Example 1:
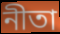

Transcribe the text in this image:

নীতা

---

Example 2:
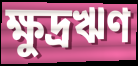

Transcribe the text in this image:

ক্ষুদ্রঋণ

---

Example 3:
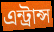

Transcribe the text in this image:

এন্ট্রান্স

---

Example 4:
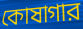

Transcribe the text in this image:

কোষাগার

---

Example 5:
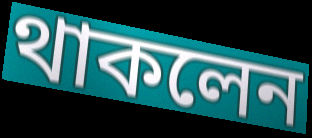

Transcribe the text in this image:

থাকলেন